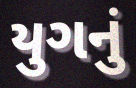
યુગનું